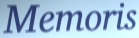
Memoris